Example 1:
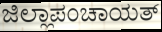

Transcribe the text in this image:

ಜಿಲ್ಲಾಪಂಚಾಯತ್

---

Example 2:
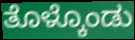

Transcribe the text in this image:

ತೊಳ್ಕೊಂಡು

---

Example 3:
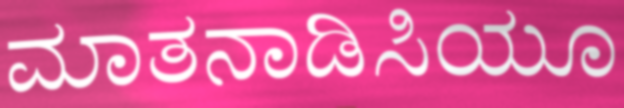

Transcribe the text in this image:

ಮಾತನಾಡಿಸಿಯೂ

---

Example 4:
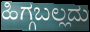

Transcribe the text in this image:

ಹಿಗ್ಗಬಲ್ಲದು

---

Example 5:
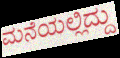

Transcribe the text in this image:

ಮನೆಯಲ್ಲಿದ್ದು